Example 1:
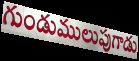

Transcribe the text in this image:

గుండుములుపుగాడు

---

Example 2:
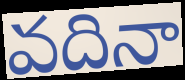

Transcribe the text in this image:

వదినా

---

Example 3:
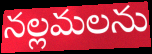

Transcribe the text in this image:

నల్లమలను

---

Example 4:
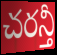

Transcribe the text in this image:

చరన్తీ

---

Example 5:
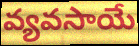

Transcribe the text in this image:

వ్యవసాయే